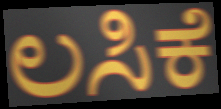
ಲಸಿಕೆ